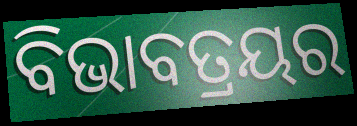
ବିଭାବତ୍ରୟର